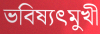
ভবিষ্যৎমুখী